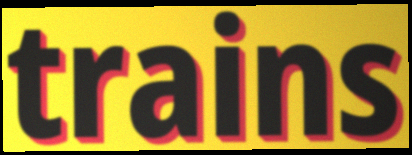
trains